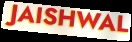
JAISHWAL